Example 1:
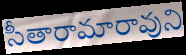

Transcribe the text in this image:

సీతారామారావుని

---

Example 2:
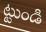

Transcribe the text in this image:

ట్టుండి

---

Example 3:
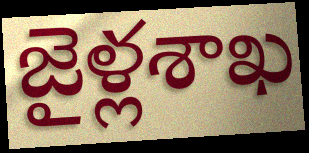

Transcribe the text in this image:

జైళ్లశాఖ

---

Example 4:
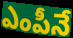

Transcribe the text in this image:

ఎంపీనే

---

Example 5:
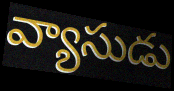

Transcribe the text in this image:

వ్యాసుడు